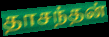
தாசந்தன்